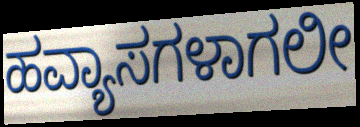
ಹವ್ಯಾಸಗಳಾಗಲೀ